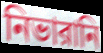
নিভারানি